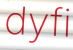
dyfi